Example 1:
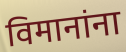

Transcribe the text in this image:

विमानांना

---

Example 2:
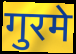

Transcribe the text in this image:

गुरमे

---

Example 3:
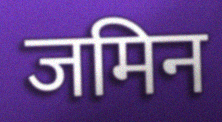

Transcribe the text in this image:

जमिन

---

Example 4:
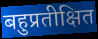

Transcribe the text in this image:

बहुप्रतीक्षित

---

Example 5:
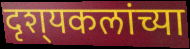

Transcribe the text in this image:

दृश्यकलांच्या